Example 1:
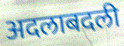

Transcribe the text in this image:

अदलाबदली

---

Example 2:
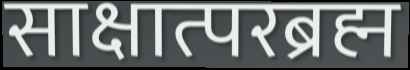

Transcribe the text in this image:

साक्षात्परब्रह्म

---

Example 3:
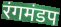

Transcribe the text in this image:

रंगमंडप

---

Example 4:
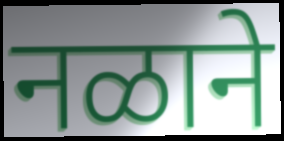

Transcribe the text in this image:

नळाने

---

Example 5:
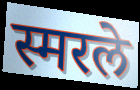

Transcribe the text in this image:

स्मरले